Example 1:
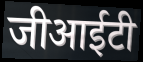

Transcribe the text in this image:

जीआईटी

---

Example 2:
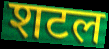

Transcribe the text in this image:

शटल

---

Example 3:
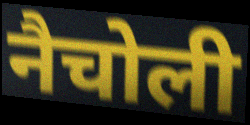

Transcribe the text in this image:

नैचोली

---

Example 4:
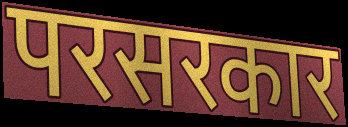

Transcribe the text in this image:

परसरकार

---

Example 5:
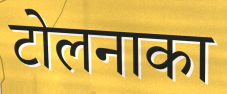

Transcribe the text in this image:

टोलनाका